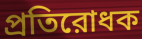
প্রতিরোধক